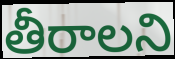
తీరాలని